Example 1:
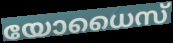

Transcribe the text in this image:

യോധൈസ്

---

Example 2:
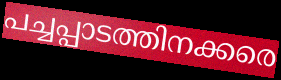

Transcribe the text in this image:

പച്ചപ്പാടത്തിനക്കരെ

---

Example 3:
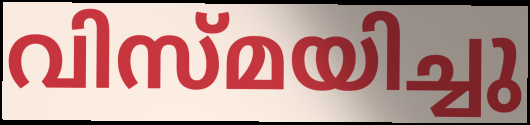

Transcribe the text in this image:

വിസ്മയിച്ചു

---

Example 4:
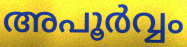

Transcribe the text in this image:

അപൂർവ്വം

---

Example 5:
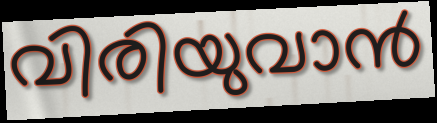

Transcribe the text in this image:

വിരിയുവാൻ